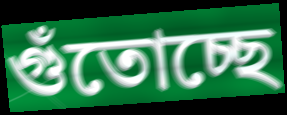
গুঁতোচ্ছে